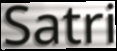
Satri